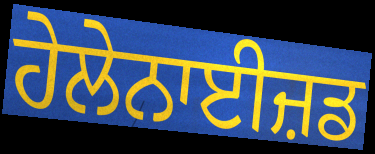
ਹੇਲੇਨਾਈਜ਼ਡ